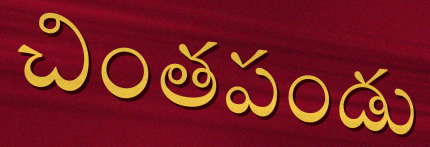
చింతపండు